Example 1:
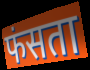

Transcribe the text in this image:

फंसता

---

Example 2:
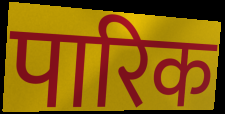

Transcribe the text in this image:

पारिक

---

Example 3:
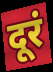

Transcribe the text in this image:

दूरं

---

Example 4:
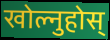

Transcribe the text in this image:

खोल्नुहोस्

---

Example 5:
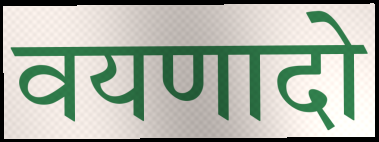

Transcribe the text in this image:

वयणादो